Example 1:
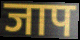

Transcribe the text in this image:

जाप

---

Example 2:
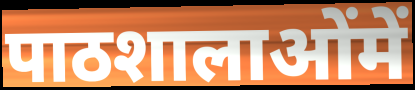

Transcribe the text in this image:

पाठशालाओंमें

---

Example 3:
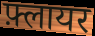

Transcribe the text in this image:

फ़्लायर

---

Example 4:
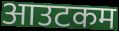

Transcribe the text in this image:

आउटकम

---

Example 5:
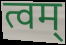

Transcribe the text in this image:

त्वम्